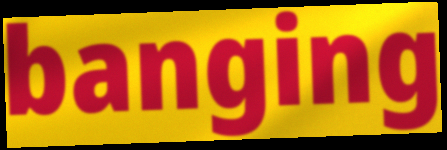
banging